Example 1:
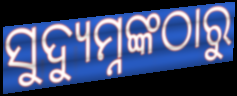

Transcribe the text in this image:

ସୁଦ୍ୟୁମ୍ନଙ୍କଠାରୁ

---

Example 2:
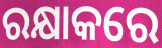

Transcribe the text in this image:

ରକ୍ଷାକରେ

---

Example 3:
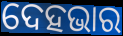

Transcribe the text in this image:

ଦେହଭାର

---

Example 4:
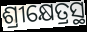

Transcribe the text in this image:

ଶ୍ରୀକ୍ଷେତ୍ରସ୍ଥ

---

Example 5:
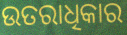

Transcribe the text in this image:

ଉତରାଧିକାର